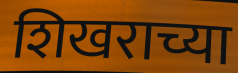
शिखराच्या